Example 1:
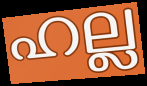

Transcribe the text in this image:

ഹല്ല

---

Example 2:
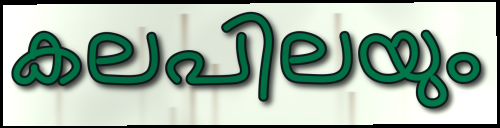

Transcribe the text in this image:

കലപിലയും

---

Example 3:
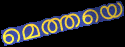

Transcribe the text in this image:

മെത്തയെ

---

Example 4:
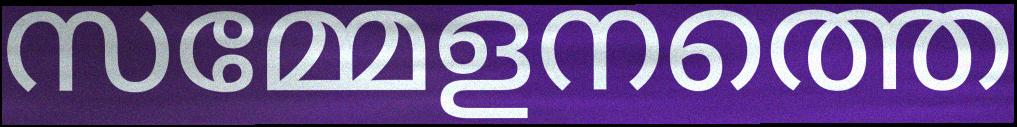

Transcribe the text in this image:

സമ്മേളനത്തെ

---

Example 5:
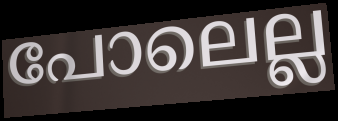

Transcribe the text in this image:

പോലെല്ല